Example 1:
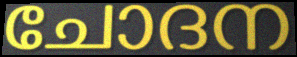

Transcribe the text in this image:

ചോദന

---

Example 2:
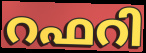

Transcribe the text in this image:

റഫറി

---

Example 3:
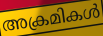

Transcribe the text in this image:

അക്രമികൾ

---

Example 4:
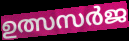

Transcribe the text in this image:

ഉത്സസർജ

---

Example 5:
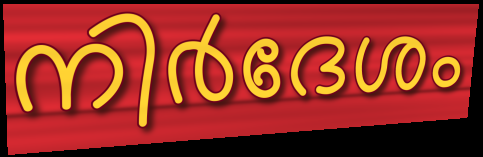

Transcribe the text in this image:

നിർദേശം